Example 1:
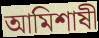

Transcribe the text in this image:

আমিশাষী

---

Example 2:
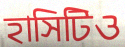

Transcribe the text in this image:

হাসিটিও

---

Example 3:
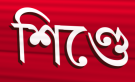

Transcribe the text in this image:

শিণ্ডে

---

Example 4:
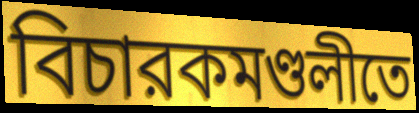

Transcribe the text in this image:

বিচারকমণ্ডলীতে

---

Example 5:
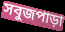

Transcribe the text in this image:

সবুজপাড়া